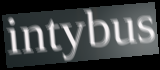
intybus